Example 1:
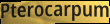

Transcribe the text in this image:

Pterocarpum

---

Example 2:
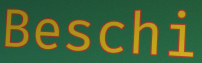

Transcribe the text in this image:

Beschi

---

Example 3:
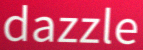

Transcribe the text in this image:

dazzle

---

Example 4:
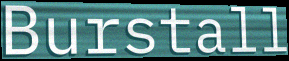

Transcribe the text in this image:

Burstall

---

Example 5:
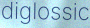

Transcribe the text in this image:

diglossic